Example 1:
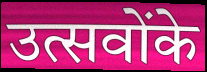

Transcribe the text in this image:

उत्सवोंके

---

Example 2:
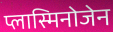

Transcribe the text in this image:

प्लास्मिनोजेन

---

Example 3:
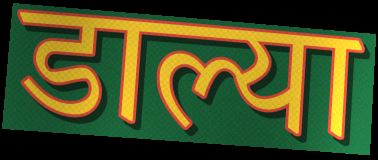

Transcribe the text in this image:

डाल्या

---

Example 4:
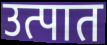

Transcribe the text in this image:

उत्पात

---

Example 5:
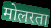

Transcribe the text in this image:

मोलरता